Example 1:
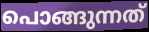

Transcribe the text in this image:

പൊങ്ങുന്നത്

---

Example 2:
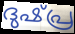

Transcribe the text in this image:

ദുഷ്‌പ്ര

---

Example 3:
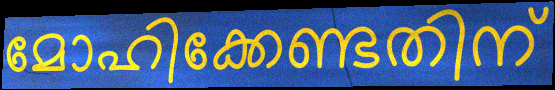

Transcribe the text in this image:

മോഹിക്കേണ്ടതിന്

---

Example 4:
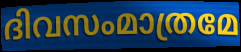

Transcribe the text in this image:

ദിവസംമാത്രമേ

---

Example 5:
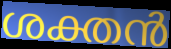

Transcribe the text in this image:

ശക്തൻ